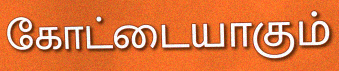
கோட்டையாகும்